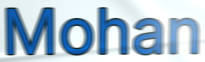
Mohan